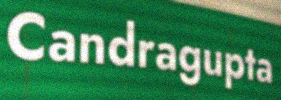
Candragupta